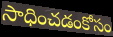
సాధించడంకోసం